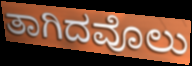
ತಾಗಿದವೊಲು